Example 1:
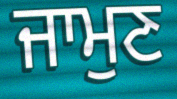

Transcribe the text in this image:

ਜਾਮੁਣ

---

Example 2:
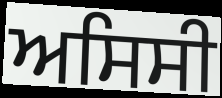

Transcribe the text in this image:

ਅਸਿਸੀ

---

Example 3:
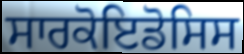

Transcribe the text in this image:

ਸਾਰਕੋਇਡੋਸਿਸ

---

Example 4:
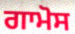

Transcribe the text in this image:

ਗਾਮੋਸ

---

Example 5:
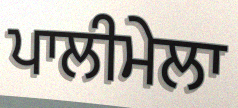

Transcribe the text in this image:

ਪਾਲੀਮੇਲਾ